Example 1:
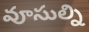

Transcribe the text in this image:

వూసుల్ని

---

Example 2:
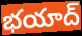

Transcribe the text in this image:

భయాద్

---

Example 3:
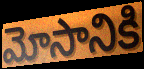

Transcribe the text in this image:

మోసానికి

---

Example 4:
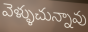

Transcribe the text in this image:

వెళ్ళుచున్నావు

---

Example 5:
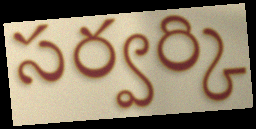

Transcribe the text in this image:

సర్వర్కి